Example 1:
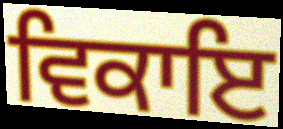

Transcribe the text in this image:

ਵਿਕਾਇ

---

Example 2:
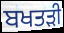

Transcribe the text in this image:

ਬਖਤੜੀ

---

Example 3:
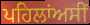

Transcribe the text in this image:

ਪਹਿਲਾਂਅਸੀਂ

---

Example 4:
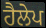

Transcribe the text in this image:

ਹੈਲੇਪ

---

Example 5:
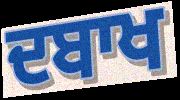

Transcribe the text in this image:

ਦਬਾਖ